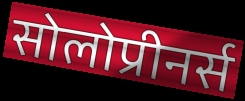
सोलोप्रीनर्स